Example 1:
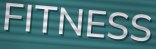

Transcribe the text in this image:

FITNESS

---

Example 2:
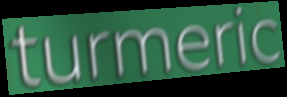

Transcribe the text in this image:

turmeric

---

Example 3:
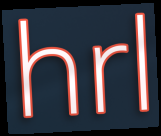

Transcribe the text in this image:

hrl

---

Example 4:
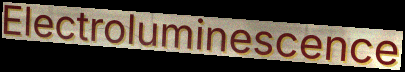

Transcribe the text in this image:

Electroluminescence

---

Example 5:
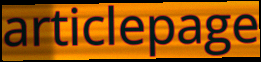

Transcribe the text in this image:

articlepage